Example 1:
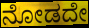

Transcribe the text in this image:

ನೋಡದೇ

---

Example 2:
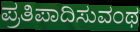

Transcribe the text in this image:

ಪ್ರತಿಪಾದಿಸುವಂಥ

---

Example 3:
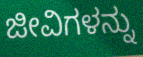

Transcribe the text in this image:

ಜೀವಿಗಳನ್ನು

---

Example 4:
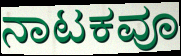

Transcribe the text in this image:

ನಾಟಕವೂ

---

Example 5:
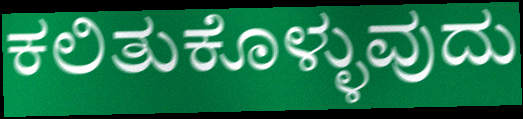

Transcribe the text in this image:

ಕಲಿತುಕೊಳ್ಳುವುದು